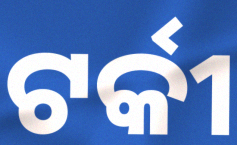
ଟର୍କୀ